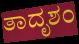
ತಾದೃಶಂ